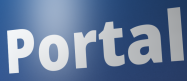
Portal